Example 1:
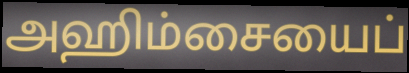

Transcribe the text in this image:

அஹிம்சையைப்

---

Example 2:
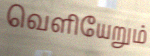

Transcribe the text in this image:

வெளியேறும்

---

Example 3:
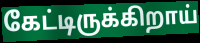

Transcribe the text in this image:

கேட்டிருக்கிறாய்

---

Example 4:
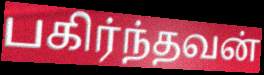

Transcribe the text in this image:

பகிர்ந்தவன்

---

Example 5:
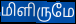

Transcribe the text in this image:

மிளிருமே